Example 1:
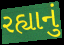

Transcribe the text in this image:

રહ્યાનું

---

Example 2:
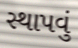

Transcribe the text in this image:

સ્થાપવું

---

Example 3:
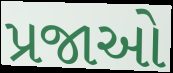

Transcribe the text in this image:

પ્રજાઓ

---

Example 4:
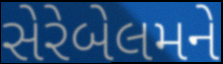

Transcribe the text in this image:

સેરેબેલમને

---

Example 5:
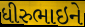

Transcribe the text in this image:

ધીરુભાઇને